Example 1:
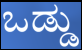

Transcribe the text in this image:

ಒಡ್ಡು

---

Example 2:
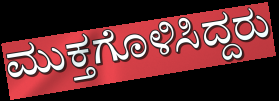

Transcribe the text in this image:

ಮುಕ್ತಗೊಳಿಸಿದ್ದರು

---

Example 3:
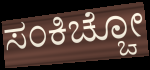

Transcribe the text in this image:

ಸಂಕಿಚ್ಚೋ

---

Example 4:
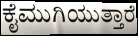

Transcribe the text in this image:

ಕೈಮುಗಿಯುತ್ತಾರೆ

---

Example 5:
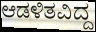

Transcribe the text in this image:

ಆಡಳಿತವಿದ್ದ